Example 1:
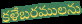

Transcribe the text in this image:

కళేబరములను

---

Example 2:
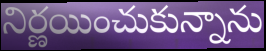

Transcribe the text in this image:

నిర్ణయించుకున్నాను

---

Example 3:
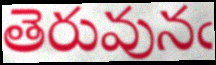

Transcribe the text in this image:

తెరువునఁ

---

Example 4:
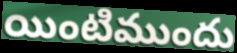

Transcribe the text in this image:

యింటిముందు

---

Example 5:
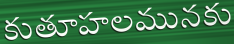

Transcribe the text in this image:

కుతూహలమునకు